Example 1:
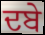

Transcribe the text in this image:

ਦਬੇ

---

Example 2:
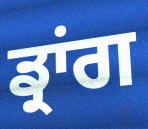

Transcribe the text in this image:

ਡ੍ਰਾਂਗ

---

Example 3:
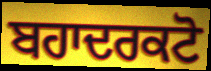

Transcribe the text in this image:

ਬਹਾਦਰਕਟੋ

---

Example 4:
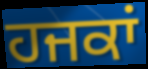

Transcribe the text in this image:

ਹਜਕਾਂ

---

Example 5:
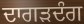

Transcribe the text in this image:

ਦਾਗੜਦੰਗ